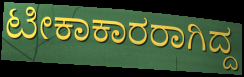
ಟೀಕಾಕಾರರಾಗಿದ್ದ